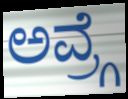
ಅವ್ರ್ಗೆ